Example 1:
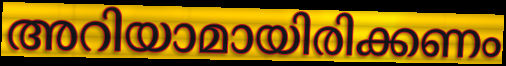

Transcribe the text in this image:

അറിയാമായിരിക്കണം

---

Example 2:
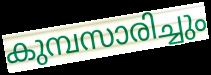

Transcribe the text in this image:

കുമ്പസാരിച്ചും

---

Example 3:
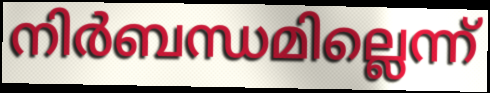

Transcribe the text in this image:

നിർബന്ധമില്ലെന്ന്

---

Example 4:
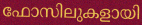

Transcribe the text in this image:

ഫോസിലുകളായി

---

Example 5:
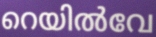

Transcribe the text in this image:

റെയിൽവേ